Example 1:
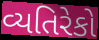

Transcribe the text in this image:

વ્યતિરેકો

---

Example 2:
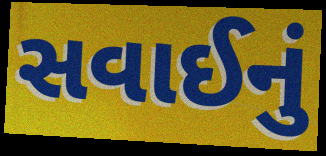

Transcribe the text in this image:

સવાઈનું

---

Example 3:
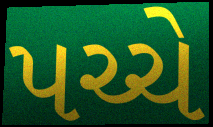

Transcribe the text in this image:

પચ્ચે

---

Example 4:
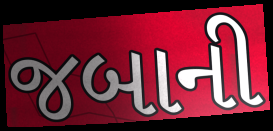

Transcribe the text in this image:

જબાની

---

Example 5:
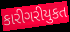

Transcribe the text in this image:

કારીગરીયુકત